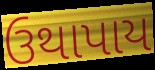
ઉથાપાય